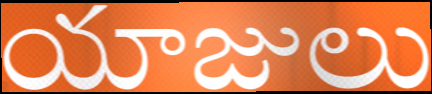
యాజులు